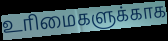
உரிமைகளுக்காக